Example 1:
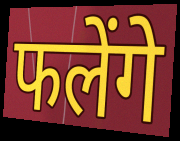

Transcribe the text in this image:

फलेंगे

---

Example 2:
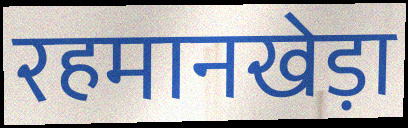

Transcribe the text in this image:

रहमानखेड़ा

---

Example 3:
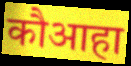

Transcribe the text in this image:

कौआहा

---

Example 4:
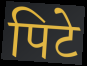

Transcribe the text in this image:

पिटे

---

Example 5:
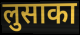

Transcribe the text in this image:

लुसाका